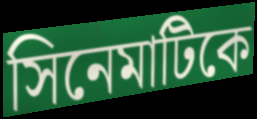
সিনেমাটিকে